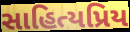
સાહિત્યપ્રિય